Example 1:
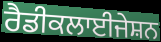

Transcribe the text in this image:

ਰੈਡੀਕਲਾਈਜੇਸ਼ਨ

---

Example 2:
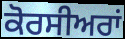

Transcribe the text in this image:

ਕੋਰਸੀਅਰਾਂ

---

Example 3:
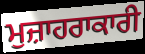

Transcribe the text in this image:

ਮੁਜ਼ਾਹਰਾਕਾਰੀ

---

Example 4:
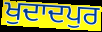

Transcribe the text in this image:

ਖੁਦਾਦਪੁਰ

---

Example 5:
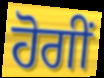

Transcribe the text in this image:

ਹੋਗੀਂ